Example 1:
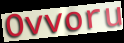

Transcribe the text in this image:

Ovvoru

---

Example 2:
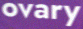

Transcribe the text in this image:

ovary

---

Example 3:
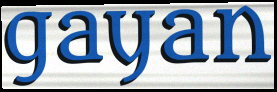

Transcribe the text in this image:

gayan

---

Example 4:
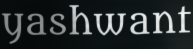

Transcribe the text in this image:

yashwant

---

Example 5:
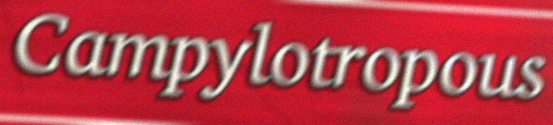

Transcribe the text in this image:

Campylotropous